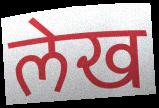
लेख